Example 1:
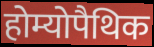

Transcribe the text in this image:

होम्योपैथिक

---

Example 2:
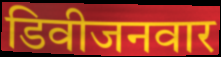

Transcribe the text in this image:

डिवीजनवार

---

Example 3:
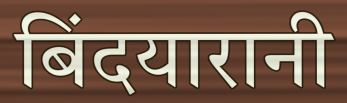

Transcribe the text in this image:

बिंदयारानी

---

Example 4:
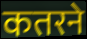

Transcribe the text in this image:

कतरने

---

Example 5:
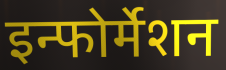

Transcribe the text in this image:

इन्फोर्मेशन